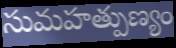
సుమహత్పుణ్యం